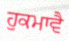
ਹੁਕਮਾਵੈ